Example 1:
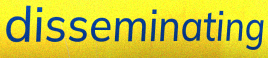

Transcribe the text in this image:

disseminating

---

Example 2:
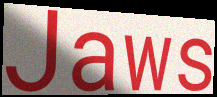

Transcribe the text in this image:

Jaws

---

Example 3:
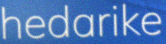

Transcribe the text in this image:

hedarike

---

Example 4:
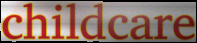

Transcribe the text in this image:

childcare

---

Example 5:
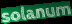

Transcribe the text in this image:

solanum